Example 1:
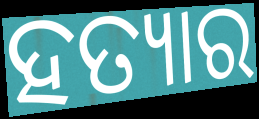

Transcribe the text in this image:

ହତ୍ୟାର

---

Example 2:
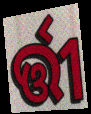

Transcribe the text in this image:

ର୍ତ୍ତୀ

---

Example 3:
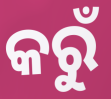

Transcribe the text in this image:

କରୁଁ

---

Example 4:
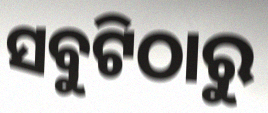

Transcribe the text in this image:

ସବୁଟିଠାରୁ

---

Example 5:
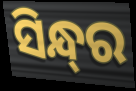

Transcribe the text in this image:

ସିନ୍ଧ୍‌ର